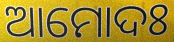
ଆମୋଦଃ